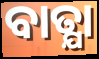
ବାତ୍ଯା